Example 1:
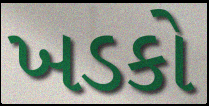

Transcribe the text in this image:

ખડકો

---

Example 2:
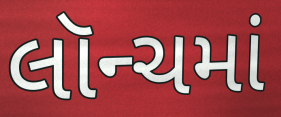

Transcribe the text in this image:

લૉન્ચમાં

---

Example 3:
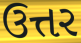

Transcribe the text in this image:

ઉત્તર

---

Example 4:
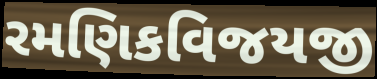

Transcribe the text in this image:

રમણિકવિજયજી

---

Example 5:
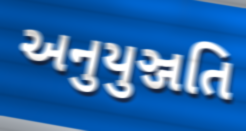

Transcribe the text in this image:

અનુયુઞ્જતિ